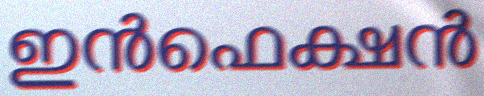
ഇൻഫെക്ഷൻ